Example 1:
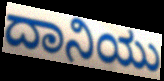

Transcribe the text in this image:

ದಾನಿಯು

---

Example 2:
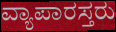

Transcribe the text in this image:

ವ್ಯಾಪಾರಸ್ತರು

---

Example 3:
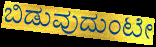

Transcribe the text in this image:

ಬಿಡುವುದುಂಟೇ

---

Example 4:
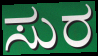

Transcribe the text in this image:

ಸುರ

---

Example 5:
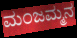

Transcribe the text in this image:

ಮಂಜಮ್ಮನ